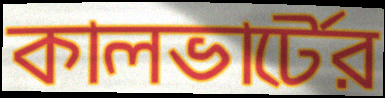
কালভার্টের